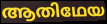
ആതിഥേയ